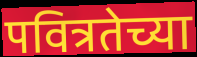
पवित्रतेच्या